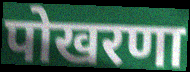
पोखरणा